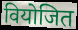
वियोजित